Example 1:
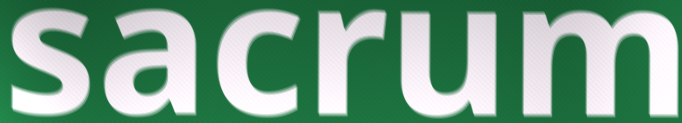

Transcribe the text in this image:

sacrum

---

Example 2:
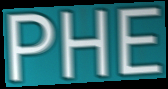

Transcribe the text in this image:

PHE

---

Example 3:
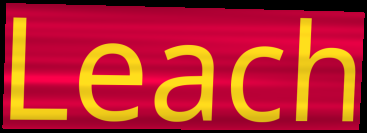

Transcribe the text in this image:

Leach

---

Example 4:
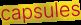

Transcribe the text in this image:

capsules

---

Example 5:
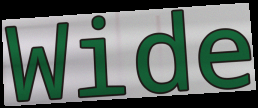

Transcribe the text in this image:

Wide